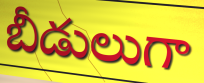
బీడులుగా